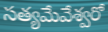
సత్యమేవేశ్వరో